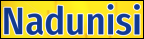
Nadunisi